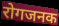
रोगजनक